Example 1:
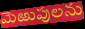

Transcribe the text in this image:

మెఱుపులను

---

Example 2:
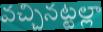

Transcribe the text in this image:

వచ్చినట్టల్లా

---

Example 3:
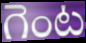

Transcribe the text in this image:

గెంట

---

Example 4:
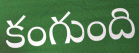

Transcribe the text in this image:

కంగుంది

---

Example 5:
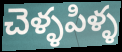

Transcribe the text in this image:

చెళ్ళపిళ్ళ